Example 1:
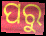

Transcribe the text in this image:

ପରୁ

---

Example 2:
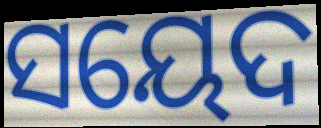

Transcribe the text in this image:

ସୟେଦ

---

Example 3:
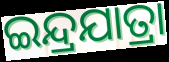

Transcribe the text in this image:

ଇନ୍ଦ୍ରଯାତ୍ରା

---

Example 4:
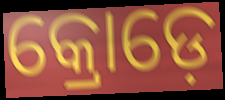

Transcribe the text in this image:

କ୍ରୋଡ଼େ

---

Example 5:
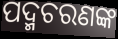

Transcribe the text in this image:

ପଦ୍ମଚରଣଙ୍କ